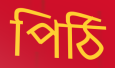
পিঠি